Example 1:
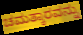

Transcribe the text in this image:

ಚಮತ್ಕಾರವನ್ನು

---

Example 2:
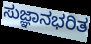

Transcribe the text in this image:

ಸುಜ್ಞಾನಭರಿತ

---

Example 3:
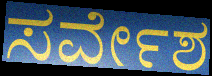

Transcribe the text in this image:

ಸರ್ವೇಶ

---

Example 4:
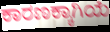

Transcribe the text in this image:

ಕಾರಣಕ್ಕಾಗಿಯೆ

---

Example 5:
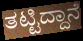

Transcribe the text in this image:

ತಟ್ಟಿದ್ದಾನೆ